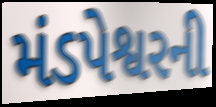
મંડપેશ્વરની